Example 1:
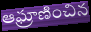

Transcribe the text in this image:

ఆఘ్రాణించిన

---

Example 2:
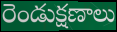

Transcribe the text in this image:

రెండుక్షణాలు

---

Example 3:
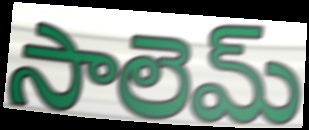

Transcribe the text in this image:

సాలెమ్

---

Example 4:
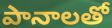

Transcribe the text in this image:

పానాలతో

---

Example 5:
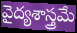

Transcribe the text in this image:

వైద్యశాస్త్రమే